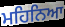
ਮਹਿਨਿਆ